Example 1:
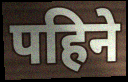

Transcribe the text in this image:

पहिने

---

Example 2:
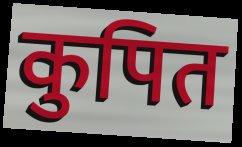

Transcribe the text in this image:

कुपित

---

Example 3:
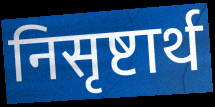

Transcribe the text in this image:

निसृष्टार्थ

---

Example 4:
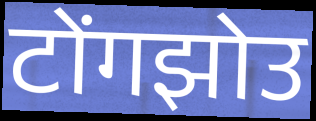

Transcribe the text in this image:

टोंगझोउ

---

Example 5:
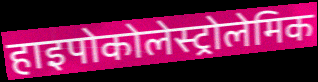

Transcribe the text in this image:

हाइपोकोलेस्ट्रोलेमिक